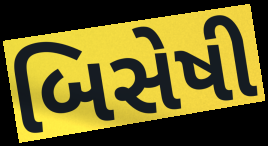
બિસેષી